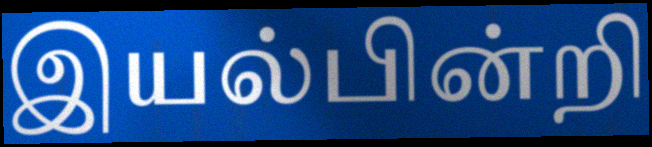
இயல்பின்றி